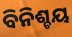
ବିନିଶ୍ଚୟ